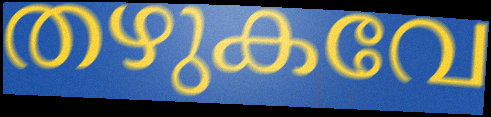
തഴുകവേ